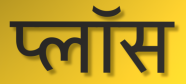
प्लॉस